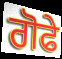
ਗੋਫੇ